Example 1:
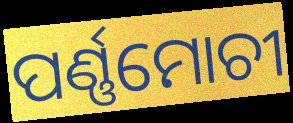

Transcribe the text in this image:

ପର୍ଣ୍ଣମୋଚୀ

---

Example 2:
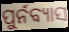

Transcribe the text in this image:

ପୁର୍ନବ୍ୟାସ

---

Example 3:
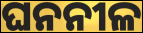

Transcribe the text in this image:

ଘନନୀଳ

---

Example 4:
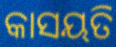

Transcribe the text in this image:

କାସୟତି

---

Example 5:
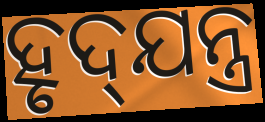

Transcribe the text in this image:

ହୃଦ୍‌ଯନ୍ତ୍ର